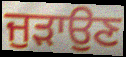
ਜੁੜਾਉਣ